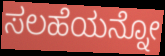
ಸಲಹೆಯನ್ನೋ